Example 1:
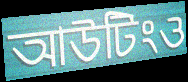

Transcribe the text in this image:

আউটিংও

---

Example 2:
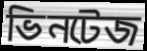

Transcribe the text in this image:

ভিনটেজ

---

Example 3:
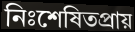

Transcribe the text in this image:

নিঃশেষিতপ্রায়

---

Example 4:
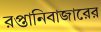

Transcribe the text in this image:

রপ্তানিবাজারের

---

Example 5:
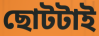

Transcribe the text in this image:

ছোটটাই